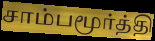
சாம்பமூர்த்தி